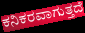
ಕನಿಕರವಾಗುತ್ತದೆ